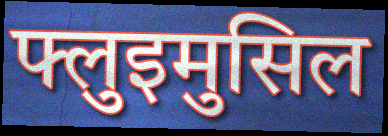
फ्लुइमुसिल